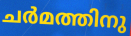
ചർമത്തിനു